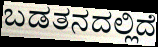
ಬಡತನದಲ್ಲಿದೆ